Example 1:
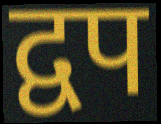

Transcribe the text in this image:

द्वप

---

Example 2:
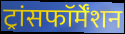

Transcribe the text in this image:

ट्रांसफॉर्मेंशन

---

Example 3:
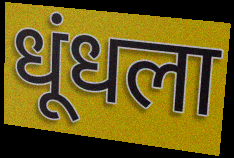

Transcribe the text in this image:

धूंधला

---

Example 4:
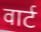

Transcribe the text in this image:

वार्ट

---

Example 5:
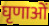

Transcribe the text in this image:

घृणाओं